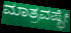
ಮಾತ್ರವಷ್ಟೇ